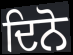
ਦਿਨੋ